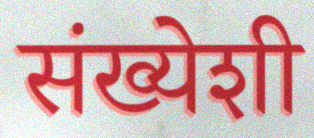
संख्येशी